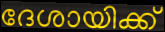
ദേശായിക്ക്